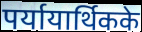
पर्यायार्थिकके